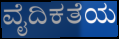
ವೈದಿಕತೆಯ